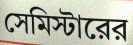
সেমিস্টারের